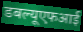
डबल्यूएफआई